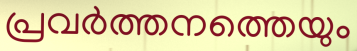
പ്രവർത്തനത്തെയും